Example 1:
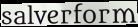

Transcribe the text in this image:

salverform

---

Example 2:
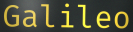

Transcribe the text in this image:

Galileo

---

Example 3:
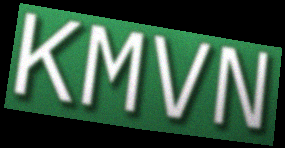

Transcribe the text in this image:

KMVN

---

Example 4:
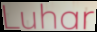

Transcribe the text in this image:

Luhar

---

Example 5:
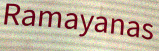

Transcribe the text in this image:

Ramayanas